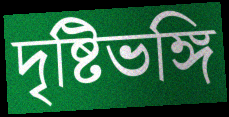
দৃষ্টিভঙ্গি